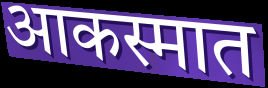
आकस्मात